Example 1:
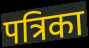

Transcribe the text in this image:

पत्रिका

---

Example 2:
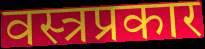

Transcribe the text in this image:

वस्त्रप्रकार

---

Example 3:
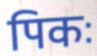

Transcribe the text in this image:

पिकः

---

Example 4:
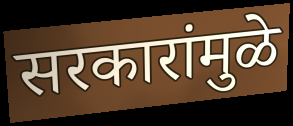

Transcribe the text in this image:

सरकारांमुळे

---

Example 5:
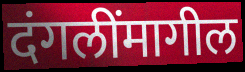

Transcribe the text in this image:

दंगलींमागील